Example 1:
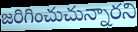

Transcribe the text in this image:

జరిగించుచున్నారని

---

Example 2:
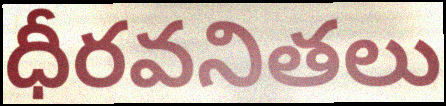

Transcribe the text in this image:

ధీరవనితలు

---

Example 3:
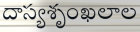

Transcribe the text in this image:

దాస్యశృంఖలాల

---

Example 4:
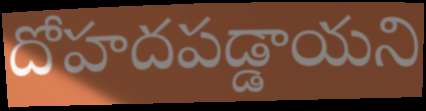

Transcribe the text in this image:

దోహదపడ్డాయని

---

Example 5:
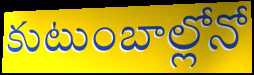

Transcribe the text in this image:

కుటుంబాల్లోనో